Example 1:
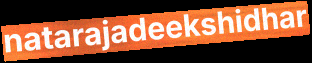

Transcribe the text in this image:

natarajadeekshidhar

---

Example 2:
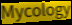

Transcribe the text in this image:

Mycology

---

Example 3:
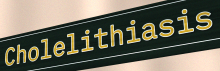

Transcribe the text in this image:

Cholelithiasis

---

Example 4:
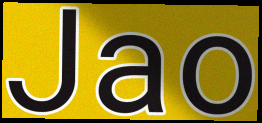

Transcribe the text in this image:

Jao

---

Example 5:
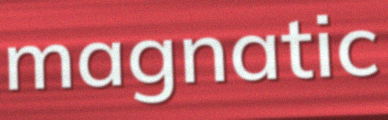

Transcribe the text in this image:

magnatic